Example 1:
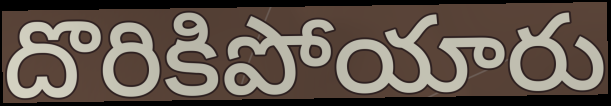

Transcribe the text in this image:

దొరికిపోయారు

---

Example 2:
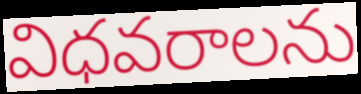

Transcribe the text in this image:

విధవరాలను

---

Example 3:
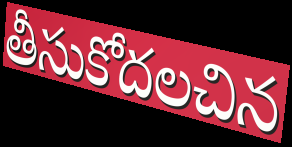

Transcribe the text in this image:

తీసుకోదలచిన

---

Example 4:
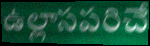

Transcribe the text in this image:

ఉల్లాసపరిచే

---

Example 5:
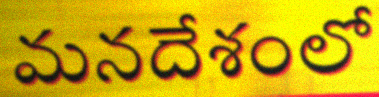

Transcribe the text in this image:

మనదేశంలో